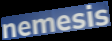
nemesis